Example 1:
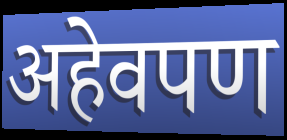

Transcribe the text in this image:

अहेवपण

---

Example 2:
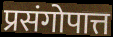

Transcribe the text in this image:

प्रसंगोपात्त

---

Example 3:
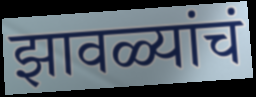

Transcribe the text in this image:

झावळ्यांचं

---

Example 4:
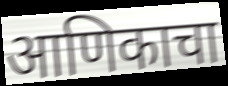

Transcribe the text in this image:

आणिकाचा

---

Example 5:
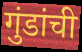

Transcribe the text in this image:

गुंडांची